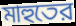
মাহুতের